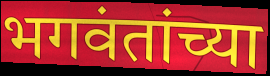
भगवंतांच्या